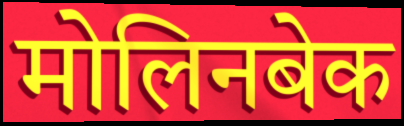
मोलिनबेक